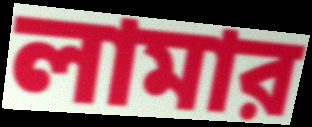
লামার